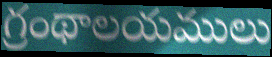
గ్రంథాలయములు